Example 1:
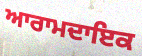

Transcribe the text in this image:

ਆਰਾਮਦਾਇਕ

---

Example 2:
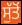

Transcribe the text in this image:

ਸੁੱਤੋਂ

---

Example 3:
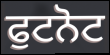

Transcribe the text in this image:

ਫੁਟਨੋਟ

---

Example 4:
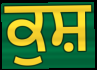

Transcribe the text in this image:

ਕੁਸ਼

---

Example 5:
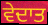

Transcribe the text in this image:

ਵੇਦਾਤ